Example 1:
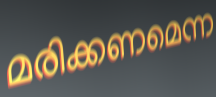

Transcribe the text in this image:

മരിക്കണമെന്ന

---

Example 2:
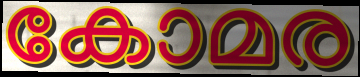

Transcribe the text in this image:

കോമര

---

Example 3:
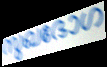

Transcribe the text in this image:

സുഖഭോഗ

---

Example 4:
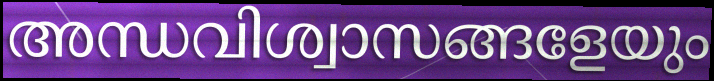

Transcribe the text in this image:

അന്ധവിശ്വാസങ്ങളേയും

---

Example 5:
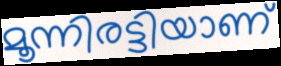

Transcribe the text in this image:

മൂന്നിരട്ടിയാണ്